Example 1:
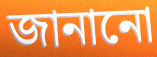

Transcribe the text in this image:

জানানো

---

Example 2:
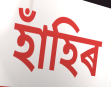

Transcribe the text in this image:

হাঁহিৰ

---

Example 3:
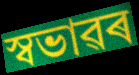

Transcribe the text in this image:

স্বভাৱৰ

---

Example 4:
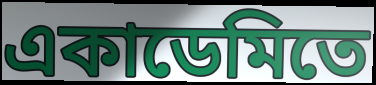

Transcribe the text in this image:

একাডেমিতে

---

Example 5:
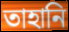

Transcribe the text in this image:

তাহানি